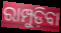
ରାମ୍ପୁଡ଼ିବା